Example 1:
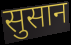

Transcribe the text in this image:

सुसान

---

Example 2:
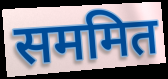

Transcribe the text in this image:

सममित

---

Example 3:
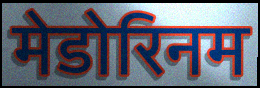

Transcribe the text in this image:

मेडोरिनम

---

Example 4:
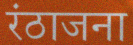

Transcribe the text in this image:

रंठाजना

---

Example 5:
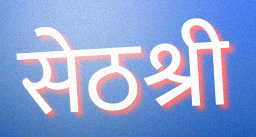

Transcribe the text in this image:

सेठश्री